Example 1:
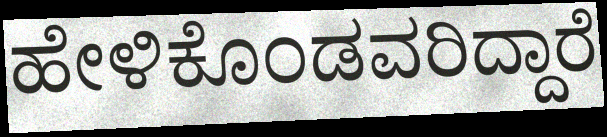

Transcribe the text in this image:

ಹೇಳಿಕೊಂಡವರಿದ್ದಾರೆ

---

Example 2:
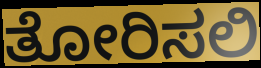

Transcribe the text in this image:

ತೋರಿಸಲಿ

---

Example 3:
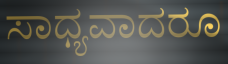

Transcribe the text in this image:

ಸಾಧ್ಯವಾದರೂ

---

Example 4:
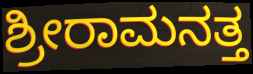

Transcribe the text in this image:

ಶ್ರೀರಾಮನತ್ತ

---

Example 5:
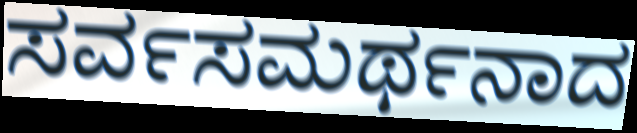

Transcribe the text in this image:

ಸರ್ವಸಮರ್ಥನಾದ